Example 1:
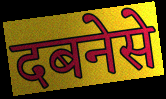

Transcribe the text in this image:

दबनेसे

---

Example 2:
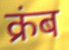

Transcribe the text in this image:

क्रंब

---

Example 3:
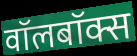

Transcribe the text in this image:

वॉलबॉक्स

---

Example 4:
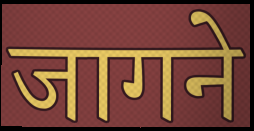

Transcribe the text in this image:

जागने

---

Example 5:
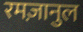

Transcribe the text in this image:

रमज़ानुल